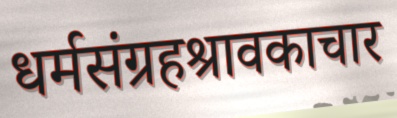
धर्मसंग्रहश्रावकाचार